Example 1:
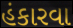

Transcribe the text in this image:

હંકારવા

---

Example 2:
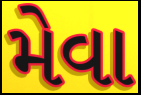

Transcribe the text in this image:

મેવા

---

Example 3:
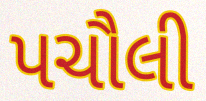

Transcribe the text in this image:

પચૌલી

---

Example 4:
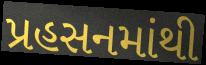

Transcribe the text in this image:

પ્રહસનમાંથી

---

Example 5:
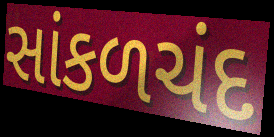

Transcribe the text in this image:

સાંકળચંદ